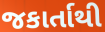
જકાર્તાથી